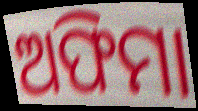
ଅଫିମା